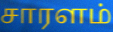
சாரளம்